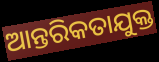
ଆନ୍ତରିକତାଯୁକ୍ତ